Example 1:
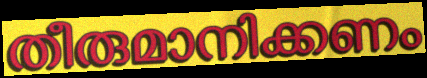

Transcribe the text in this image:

തീരുമാനിക്കണം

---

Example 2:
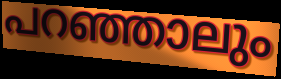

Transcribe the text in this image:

പറഞ്ഞാലും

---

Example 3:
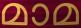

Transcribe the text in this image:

മാമ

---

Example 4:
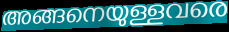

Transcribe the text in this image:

അങ്ങനെയുള്ളവരെ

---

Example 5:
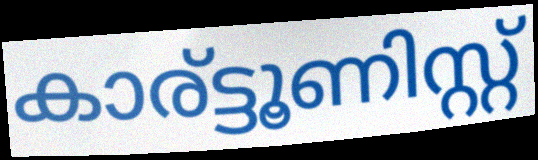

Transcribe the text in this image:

കാര്ട്ടൂണിസ്റ്റ്